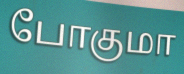
போகுமா